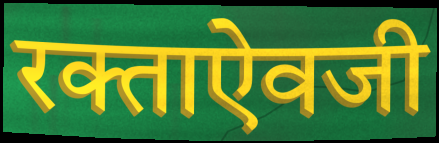
रक्ताऐवजी